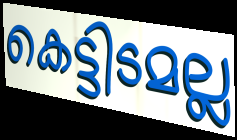
കെട്ടിടമല്ല